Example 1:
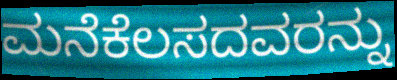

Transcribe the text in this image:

ಮನೆಕೆಲಸದವರನ್ನು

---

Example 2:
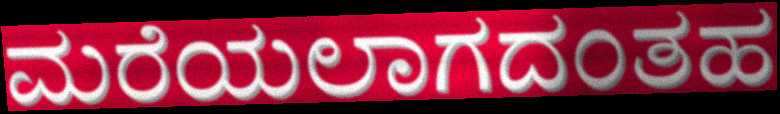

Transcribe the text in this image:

ಮರೆಯಲಾಗದಂತಹ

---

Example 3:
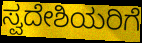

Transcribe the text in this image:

ಸ್ವದೇಶಿಯರಿಗೆ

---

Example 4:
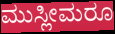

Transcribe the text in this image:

ಮುಸ್ಲೀಮರೂ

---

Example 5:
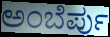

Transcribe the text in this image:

ಅಂಬೆರ್ಪು